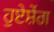
ਹੁਏਸ਼ੇਂਗ